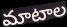
మాటాల